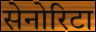
सेनोरिटा